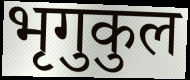
भृगुकुल